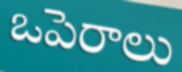
ఒపెరాలు